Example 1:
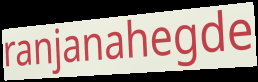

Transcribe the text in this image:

ranjanahegde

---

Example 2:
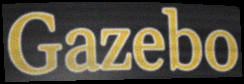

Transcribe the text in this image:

Gazebo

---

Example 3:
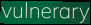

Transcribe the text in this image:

vulnerary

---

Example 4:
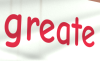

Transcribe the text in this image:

greate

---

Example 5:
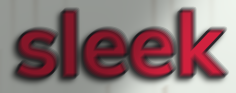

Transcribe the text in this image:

sleek